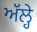
ਅੱਲ੍ਹੇ